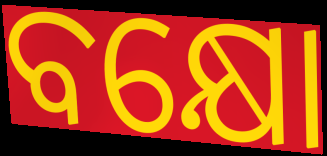
ବକ୍ଷୋ